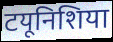
टयूनिशिया